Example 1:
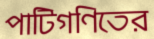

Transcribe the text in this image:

পাটিগণিতের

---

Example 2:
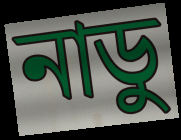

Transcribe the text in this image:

নাডু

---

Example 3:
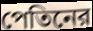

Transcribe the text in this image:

পেতিনের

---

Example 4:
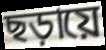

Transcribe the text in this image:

ছড়ায়ে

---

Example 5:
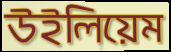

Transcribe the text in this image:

উইলিয়েম